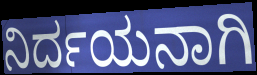
ನಿರ್ದಯನಾಗಿ